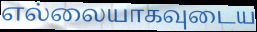
எல்லையாகவுடைய